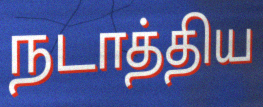
நடாத்திய